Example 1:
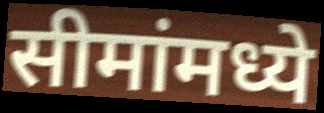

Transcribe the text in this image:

सीमांमध्ये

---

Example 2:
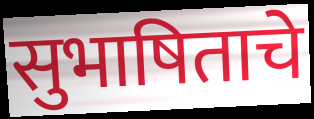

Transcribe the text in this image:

सुभाषिताचे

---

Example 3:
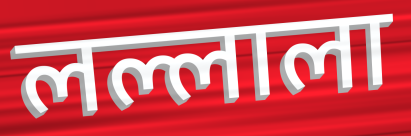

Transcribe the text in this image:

लल्लाला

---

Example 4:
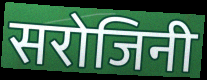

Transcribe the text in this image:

सरोजिनी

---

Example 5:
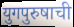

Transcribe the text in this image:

युगपुरुषाची